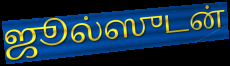
ஜூல்ஸுடன்